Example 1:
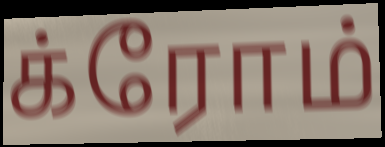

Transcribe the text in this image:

க்ரோம்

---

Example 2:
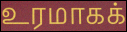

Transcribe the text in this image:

உரமாகக்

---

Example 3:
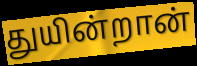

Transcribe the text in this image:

துயின்றான்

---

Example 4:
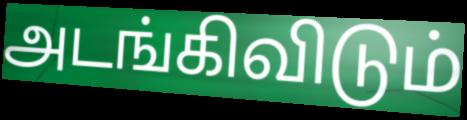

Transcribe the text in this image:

அடங்கிவிடும்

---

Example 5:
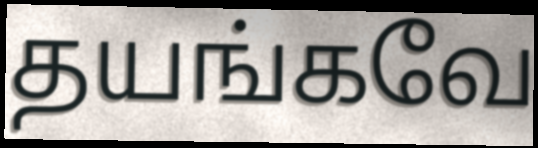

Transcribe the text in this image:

தயங்கவே